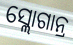
ସ୍ଲୋଗାନ୍ର